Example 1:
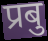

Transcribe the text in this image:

प्रबु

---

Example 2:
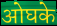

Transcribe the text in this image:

ओघके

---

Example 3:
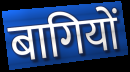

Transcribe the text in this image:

बागियों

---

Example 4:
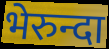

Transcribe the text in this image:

भेरुन्दा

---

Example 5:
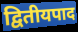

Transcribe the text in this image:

द्वितीयपाद